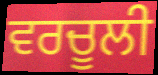
ਵਰਚੂਲੀ